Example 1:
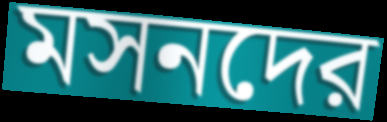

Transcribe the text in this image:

মসনদের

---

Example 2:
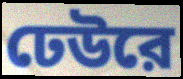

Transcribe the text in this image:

ঢেউরে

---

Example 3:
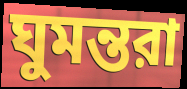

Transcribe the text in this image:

ঘুমন্তরা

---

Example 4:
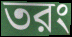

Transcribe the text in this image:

তরং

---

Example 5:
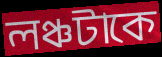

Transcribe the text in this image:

লঞ্চটাকে